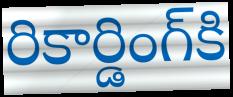
రికార్డింగ్‌కి